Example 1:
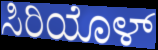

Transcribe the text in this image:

ಸಿರಿಯೊಳ್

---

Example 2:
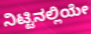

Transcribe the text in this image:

ನಿಟ್ಟಿನಲ್ಲಿಯೇ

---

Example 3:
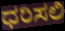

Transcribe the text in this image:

ಧರಿಸಲಿ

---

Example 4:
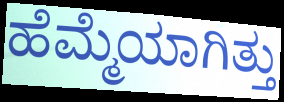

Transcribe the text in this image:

ಹೆಮ್ಮೆಯಾಗಿತ್ತು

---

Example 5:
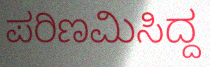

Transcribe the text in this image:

ಪರಿಣಮಿಸಿದ್ದ